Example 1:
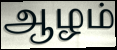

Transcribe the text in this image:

ஆழம்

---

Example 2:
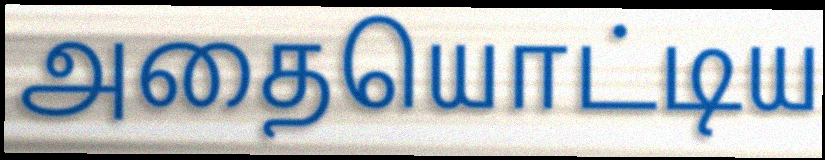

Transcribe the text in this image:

அதையொட்டிய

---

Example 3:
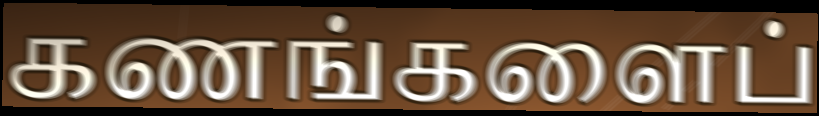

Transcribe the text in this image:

கணங்களைப்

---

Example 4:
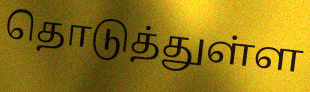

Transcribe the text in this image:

தொடுத்துள்ள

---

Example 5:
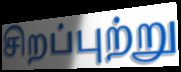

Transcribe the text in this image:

சிறப்புற்று